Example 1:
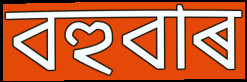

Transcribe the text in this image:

বহুবাৰ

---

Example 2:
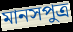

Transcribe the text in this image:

মানসপুত্ৰ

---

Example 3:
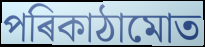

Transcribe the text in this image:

পৰিকাঠামোত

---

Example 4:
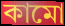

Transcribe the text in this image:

কামো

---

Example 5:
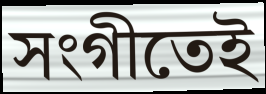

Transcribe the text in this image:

সংগীতেই